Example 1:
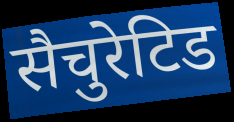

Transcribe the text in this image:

सैचुरेटिड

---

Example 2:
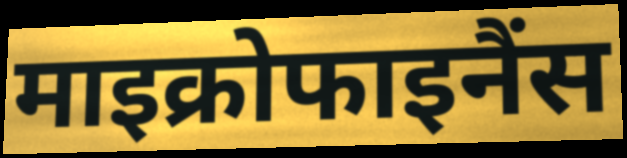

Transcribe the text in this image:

माइक्रोफाइनैंस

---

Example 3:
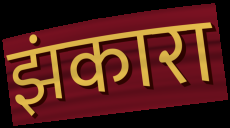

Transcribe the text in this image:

झंकारा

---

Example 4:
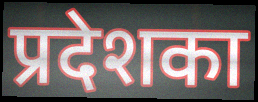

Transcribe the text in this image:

प्रदेशका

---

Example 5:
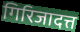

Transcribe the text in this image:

गिरिजादत्त